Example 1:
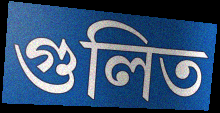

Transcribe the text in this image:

গুলিত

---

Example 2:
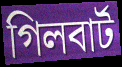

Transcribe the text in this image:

গিলবাৰ্ট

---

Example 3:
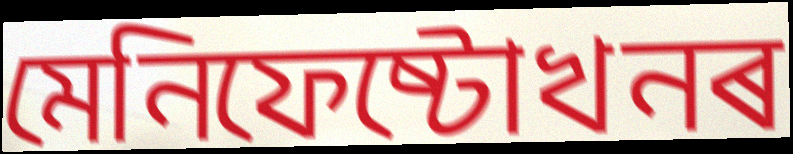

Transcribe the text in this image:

মেনিফেষ্টোখনৰ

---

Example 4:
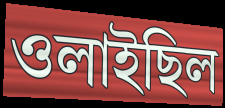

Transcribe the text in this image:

ওলাইছিল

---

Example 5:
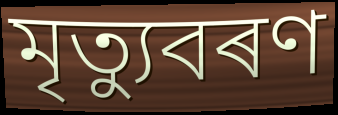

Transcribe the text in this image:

মৃত্যুবৰণ